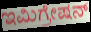
ಇಮಿಗ್ರೇಷನ್